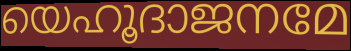
യെഹൂദാജനമേ